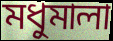
মধুমালা